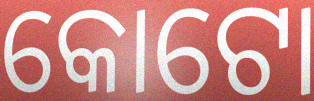
କୋଟୋ